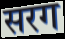
सरग